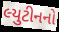
લ્યુટીનનો